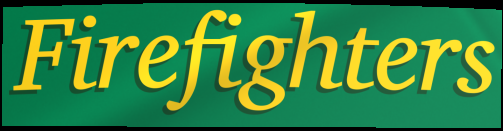
Firefighters